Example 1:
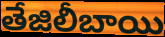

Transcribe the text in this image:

తేజిలీబాయి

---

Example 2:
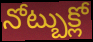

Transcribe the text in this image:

నోట్బుక్లో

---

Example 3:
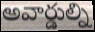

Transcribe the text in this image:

అవార్డుల్ని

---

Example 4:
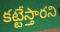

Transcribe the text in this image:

కట్టేస్తారని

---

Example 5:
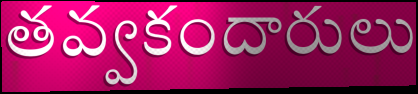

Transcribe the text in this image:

తవ్వకందారులు